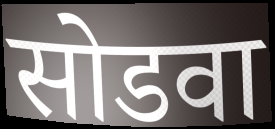
सोडवा